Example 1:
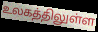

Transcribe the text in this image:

உலகத்திலுள்ள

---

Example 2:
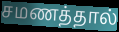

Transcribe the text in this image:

சமணத்தால்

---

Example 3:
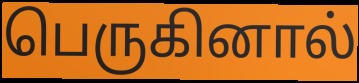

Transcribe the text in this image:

பெருகினால்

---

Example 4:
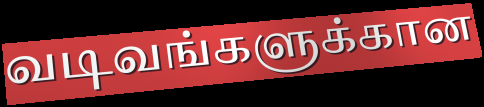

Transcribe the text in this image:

வடிவங்களுக்கான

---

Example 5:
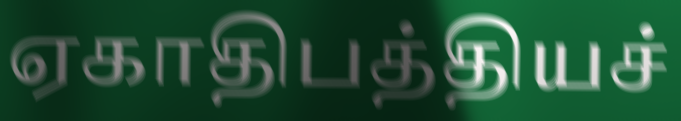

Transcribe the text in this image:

ஏகாதிபத்தியச்